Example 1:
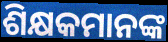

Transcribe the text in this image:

ଶିକ୍ଷକମାନଙ୍କ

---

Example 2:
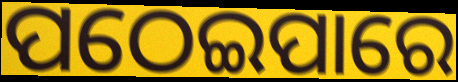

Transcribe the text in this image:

ପଠେଇପାରେ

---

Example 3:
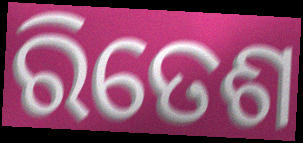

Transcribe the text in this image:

ରିତେଶ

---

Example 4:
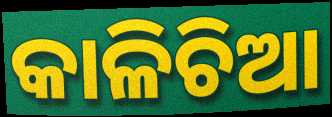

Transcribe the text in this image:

କାଳିଚିଆ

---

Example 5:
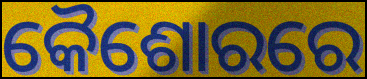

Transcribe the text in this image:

କୈଶୋରରେ